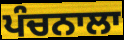
ਪੰਚਨਾਲਾ